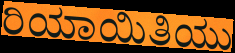
ರಿಯಾಯಿತಿಯು